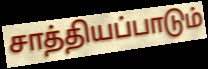
சாத்தியப்பாடும்